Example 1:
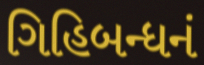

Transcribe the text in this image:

ગિહિબન્ધનં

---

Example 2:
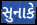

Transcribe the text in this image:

સુનાકે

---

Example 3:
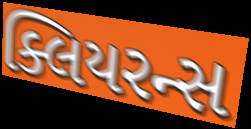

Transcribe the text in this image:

ક્લિયરન્સ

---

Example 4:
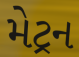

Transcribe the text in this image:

મેટ્રન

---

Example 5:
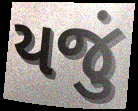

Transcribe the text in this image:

યજું